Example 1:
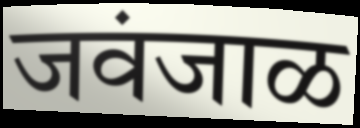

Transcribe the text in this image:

जवंजाळ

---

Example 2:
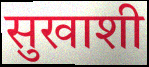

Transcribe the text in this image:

सुखाशी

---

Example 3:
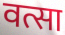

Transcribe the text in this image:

वत्सा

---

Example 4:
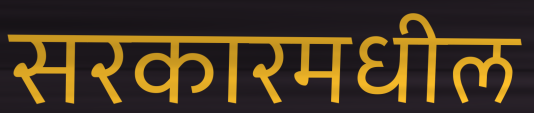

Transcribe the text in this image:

सरकारमधील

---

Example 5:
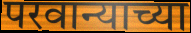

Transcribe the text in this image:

परवान्याच्या